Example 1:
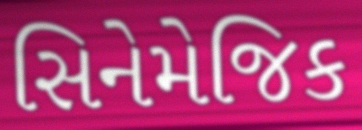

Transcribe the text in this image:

સિનેમેજિક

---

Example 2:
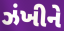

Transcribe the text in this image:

ઝંખીને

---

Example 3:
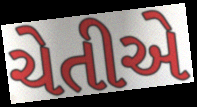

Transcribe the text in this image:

ચેતીએ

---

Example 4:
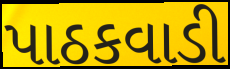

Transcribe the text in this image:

પાઠકવાડી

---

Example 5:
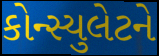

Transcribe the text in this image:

કોન્સ્યુલેટને